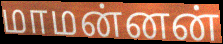
மாமன்னன்